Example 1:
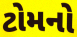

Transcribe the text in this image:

ટોમનો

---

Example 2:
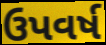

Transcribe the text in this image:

ઉપવર્ષ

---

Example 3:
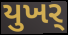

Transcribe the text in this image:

યુખર્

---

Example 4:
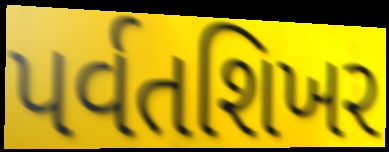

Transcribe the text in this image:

પર્વતશિખર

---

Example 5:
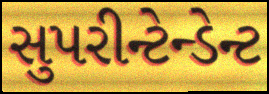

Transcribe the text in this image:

સુપરીન્ટેન્ડેન્ટ